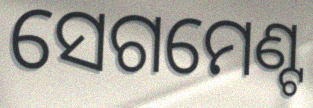
ସେଗମେଣ୍ଟ